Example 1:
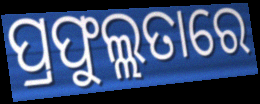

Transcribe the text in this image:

ପ୍ରଫୁଲ୍ଲତାରେ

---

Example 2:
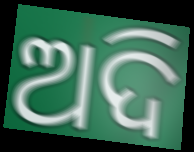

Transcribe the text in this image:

ଅଦି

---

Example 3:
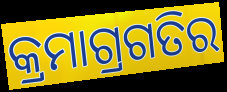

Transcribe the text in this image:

କ୍ରମାଗ୍ରଗତିର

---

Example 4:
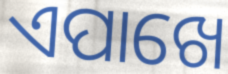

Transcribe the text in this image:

ଏପାଖେ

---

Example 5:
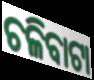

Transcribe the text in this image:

ଚଳିବାଟା